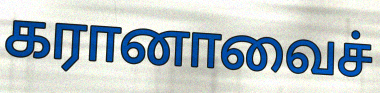
கரானாவைச்